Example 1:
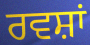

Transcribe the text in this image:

ਰਵਸ਼ਾਂ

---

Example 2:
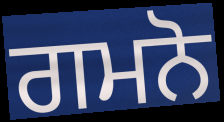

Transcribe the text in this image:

ਗਮਨੋ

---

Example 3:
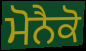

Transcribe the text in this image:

ਮੋਨੈਕੋ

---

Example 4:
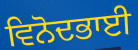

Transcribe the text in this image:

ਵਿਨੋਦਭਾਈ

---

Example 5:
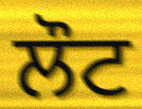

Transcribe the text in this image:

ਲੌਟ